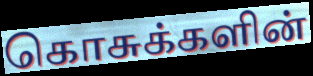
கொசுக்களின்